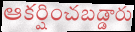
ఆకర్షించబడ్డారు